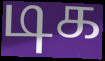
டிக